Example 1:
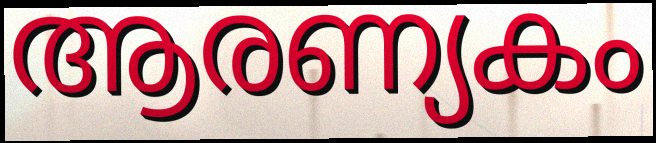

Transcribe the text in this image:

ആരണ്യകം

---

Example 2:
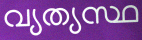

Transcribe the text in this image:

വ്യത്യസ്ഥ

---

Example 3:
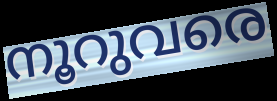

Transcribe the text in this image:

നൂറുവരെ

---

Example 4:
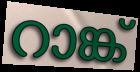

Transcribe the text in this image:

റാങ്ക്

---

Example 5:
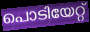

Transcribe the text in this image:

പൊടിയേറ്റ്